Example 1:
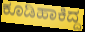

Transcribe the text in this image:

ಕೂಡಿಹಾಕಿದ್ದ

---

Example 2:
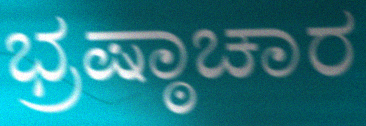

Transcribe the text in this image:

ಭ್ರಷ್ಠಾಚಾರ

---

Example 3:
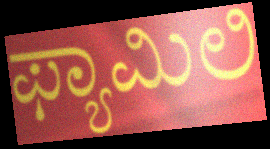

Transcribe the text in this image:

ಫ್ಯಾಮಿಲಿ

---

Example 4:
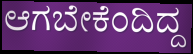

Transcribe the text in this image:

ಆಗಬೇಕೆಂದಿದ್ದ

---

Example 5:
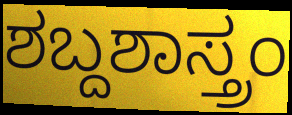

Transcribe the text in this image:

ಶಬ್ದಶಾಸ್ತ್ರಂ